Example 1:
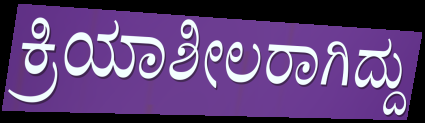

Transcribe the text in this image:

ಕ್ರಿಯಾಶೀಲರಾಗಿದ್ದು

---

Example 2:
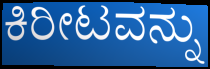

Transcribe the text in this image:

ಕಿರೀಟವನ್ನು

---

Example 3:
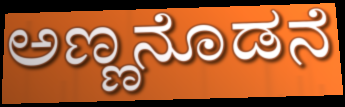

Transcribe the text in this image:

ಅಣ್ಣನೊಡನೆ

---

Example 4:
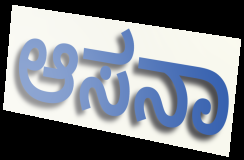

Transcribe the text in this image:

ಆಸನಾ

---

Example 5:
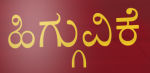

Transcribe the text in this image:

ಹಿಗ್ಗುವಿಕೆ